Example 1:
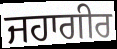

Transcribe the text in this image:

ਜਹਾਗੀਰ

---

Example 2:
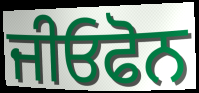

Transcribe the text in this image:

ਜੀਓਫੋਨ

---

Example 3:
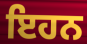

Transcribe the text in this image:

ਇਹਨ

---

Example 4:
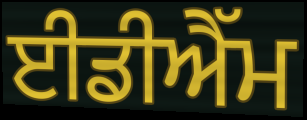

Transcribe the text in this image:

ਈਡੀਐੱਮ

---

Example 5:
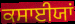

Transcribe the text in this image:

ਕਸਾਈਯਾਂ